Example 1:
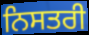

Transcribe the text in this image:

ਨਿਸਤਰੀ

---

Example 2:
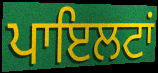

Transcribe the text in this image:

ਪਾਇਲਟਾਂ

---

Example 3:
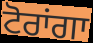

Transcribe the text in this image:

ਟੋਰਾਂਗਾ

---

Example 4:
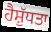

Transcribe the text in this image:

ਹੈਸ਼ੁੱਧਤਾ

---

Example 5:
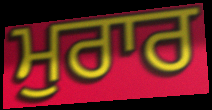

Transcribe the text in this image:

ਮੁਰਾਰ